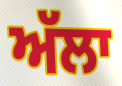
ਅੱਲਾ